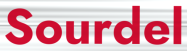
Sourdel